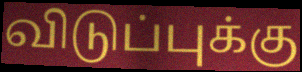
விடுப்புக்கு